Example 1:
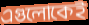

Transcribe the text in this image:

এগুলোকেই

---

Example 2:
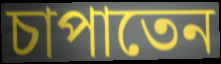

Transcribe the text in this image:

চাপাতেন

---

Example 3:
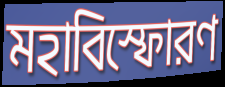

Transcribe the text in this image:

মহাবিস্ফোরণ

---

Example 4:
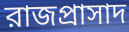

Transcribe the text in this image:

রাজপ্রাসাদ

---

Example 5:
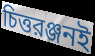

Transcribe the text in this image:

চিত্তরঞ্জনই